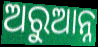
ଅରୁଆନ୍ନ